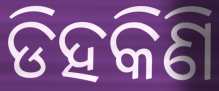
ଡିହକିଣି